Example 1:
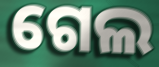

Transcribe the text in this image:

ଗେଲ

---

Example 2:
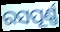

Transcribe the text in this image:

ରସପୂର୍ଣ୍ଣ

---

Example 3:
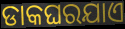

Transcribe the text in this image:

ଡାକଘରଯାଏ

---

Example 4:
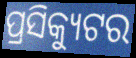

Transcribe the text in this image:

ପ୍ରସିକ୍ୟୁଟର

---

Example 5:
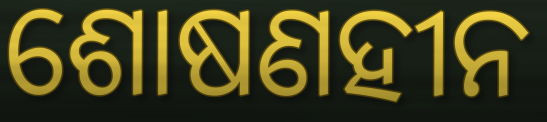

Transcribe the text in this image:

ଶୋଷଣହୀନ